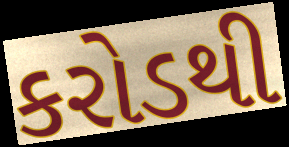
કરોડથી